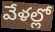
వేళల్లో